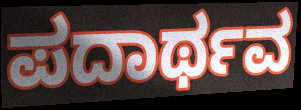
ಪದಾರ್ಥವ